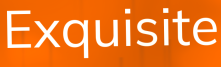
Exquisite